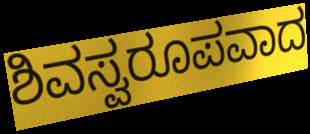
ಶಿವಸ್ವರೂಪವಾದ